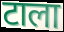
टाला